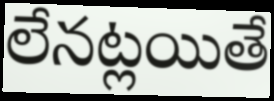
లేనట్లయితే